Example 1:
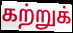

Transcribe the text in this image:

கற்றுக்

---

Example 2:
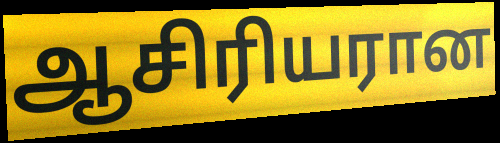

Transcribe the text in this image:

ஆசிரியரான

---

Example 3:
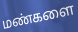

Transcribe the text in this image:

மண்களை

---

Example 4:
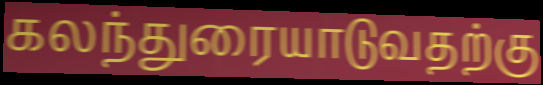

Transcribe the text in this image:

கலந்துரையாடுவதற்கு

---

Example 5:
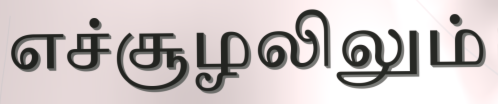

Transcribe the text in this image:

எச்சூழலிலும்